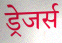
ड्रेजर्स